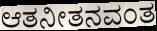
ಆತನೀತನವಂತ